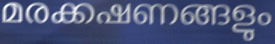
മരക്കഷണങ്ങളും